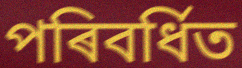
পৰিবৰ্ধিত